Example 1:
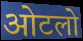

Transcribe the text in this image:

ओटलो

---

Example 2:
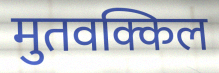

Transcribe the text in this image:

मुतवक्किल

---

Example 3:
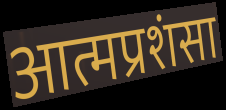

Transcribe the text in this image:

आत्मप्रशंसा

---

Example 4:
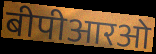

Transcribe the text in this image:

बीपीआरओ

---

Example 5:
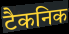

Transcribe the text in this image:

टैकनिक